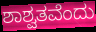
ಶಾಶ್ವತವೆಂದು